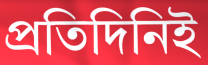
প্রতিদিনিই